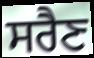
ਸਰੈਣ